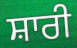
ਸ਼ਾਰੀ